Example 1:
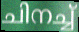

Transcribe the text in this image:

ചിനച്ച്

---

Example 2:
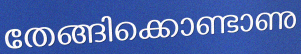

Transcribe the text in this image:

തേങ്ങിക്കൊണ്ടാണു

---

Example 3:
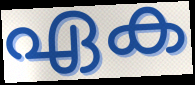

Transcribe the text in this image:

ഏക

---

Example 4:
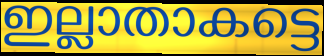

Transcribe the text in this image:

ഇല്ലാതാകട്ടെ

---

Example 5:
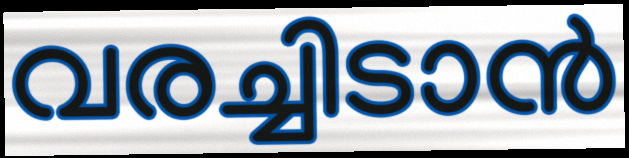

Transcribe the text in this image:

വരച്ചിടാൻ